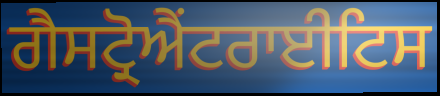
ਗੈਸਟ੍ਰੋਐਂਟਰਾਈਟਿਸ